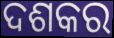
ଦଶକର